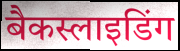
बैकस्लाइडिंग